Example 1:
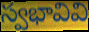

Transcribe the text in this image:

స్వభావివి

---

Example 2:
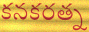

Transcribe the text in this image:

కనకరత్న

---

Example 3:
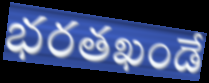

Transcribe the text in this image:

భరతఖండే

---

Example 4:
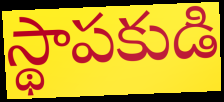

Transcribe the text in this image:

స్థాపకుడి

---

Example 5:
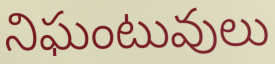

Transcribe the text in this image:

నిఘంటువులు